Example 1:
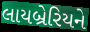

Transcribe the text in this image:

લાયબ્રેરિયને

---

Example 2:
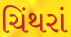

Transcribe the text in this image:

ચિંથરાં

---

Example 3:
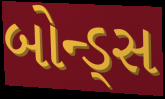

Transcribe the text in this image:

બોન્ડ્સ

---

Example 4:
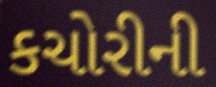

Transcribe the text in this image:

કચોરીની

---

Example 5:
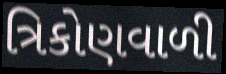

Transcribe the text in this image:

ત્રિકોણવાળી